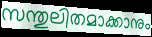
സന്തുലിതമാക്കാനും